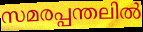
സമരപ്പന്തലിൽ